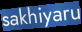
sakhiyaru